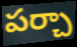
పర్చా